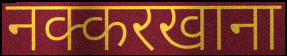
नक्करखाना